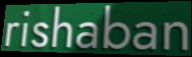
rishaban